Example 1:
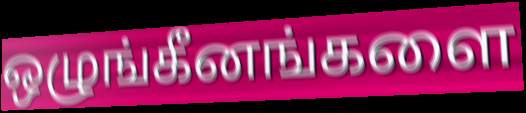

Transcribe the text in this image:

ஒழுங்கீனங்களை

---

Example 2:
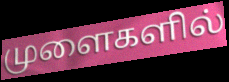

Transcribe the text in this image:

முளைகளில்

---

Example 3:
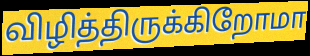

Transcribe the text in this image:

விழித்திருக்கிறோமா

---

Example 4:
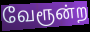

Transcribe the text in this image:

வேரூன்ற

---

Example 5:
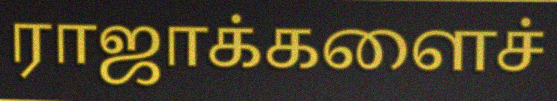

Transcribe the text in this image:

ராஜாக்களைச்